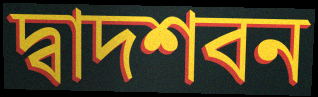
দ্বাদশবন